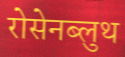
रोसेनब्लुथ